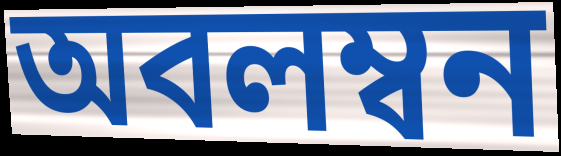
অবলম্বন